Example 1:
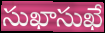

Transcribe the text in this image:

సుఖాసుఖే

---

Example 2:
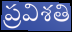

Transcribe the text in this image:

ప్రవిశతి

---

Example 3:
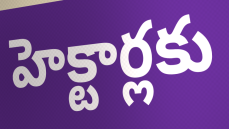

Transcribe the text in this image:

హెక్టార్లకు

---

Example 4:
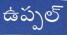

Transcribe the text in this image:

ఉప్పల్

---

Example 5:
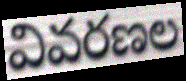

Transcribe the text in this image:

వివరణల